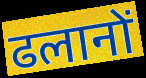
ढलानों